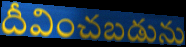
దీవించబడును